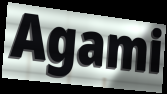
Agami